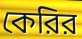
কেরির